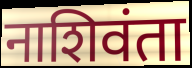
नाशिवंता